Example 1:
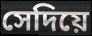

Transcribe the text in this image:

সেদিয়ে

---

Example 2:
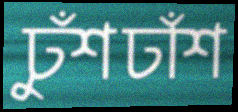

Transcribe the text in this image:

ঢুঁশঢাঁশ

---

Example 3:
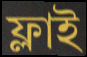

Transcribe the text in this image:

ফ্লাই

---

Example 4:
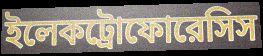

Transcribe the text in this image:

ইলেকট্রোফোরেসিস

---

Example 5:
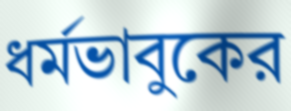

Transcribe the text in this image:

ধর্মভাবুকের